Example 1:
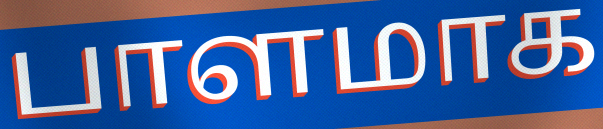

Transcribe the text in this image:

பாளமாக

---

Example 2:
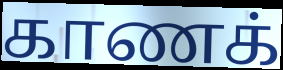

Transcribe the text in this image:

காணக்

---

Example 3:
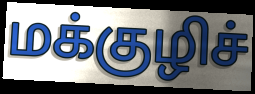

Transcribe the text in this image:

மக்குழிச்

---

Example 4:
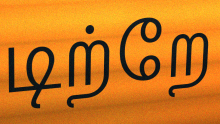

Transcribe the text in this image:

டிற்றே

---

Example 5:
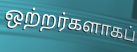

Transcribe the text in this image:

ஒற்றர்களாகப்